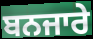
ਬਨਜਾਰੇ